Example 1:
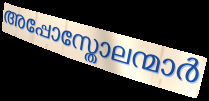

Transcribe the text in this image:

അപ്പോസ്തോലന്മാർ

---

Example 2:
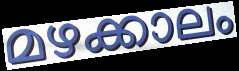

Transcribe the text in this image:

മഴക്കാലം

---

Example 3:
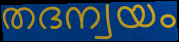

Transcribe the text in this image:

തദന്വയം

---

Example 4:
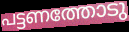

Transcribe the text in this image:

പട്ടണത്തോടു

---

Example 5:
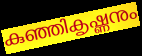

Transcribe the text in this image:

കുഞ്ഞികൃഷ്ണനും